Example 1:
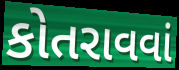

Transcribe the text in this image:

કોતરાવવાં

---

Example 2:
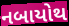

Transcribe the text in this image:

નબાયોથ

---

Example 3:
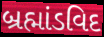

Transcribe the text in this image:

બ્રહ્માંડવિદ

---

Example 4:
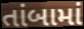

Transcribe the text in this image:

તાંબામાં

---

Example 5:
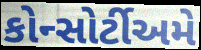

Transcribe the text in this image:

કોન્સોર્ટીઅમે